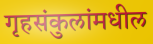
गृहसंकुलांमधील